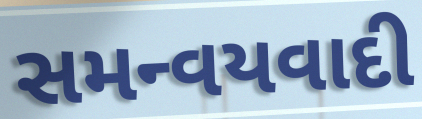
સમન્વયવાદી